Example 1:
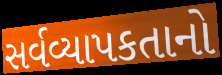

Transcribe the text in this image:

સર્વવ્યાપકતાનો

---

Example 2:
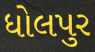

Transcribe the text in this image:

ધોલપુર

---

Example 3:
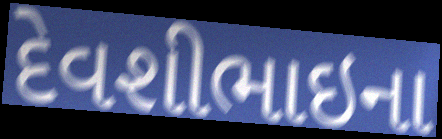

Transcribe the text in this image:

દેવશીભાઇના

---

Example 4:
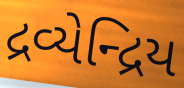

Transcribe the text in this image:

દ્રવ્યેન્દ્રિય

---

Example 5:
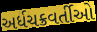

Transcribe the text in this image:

અર્ધચક્રવર્તીઓ